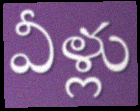
వీళ్లు